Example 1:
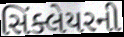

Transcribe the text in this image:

સિંક્લેયરની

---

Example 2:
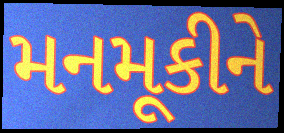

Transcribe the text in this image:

મનમૂકીને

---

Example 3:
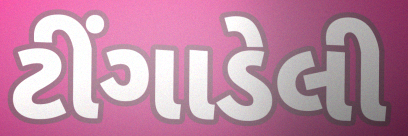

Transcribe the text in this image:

ટીંગાડેલી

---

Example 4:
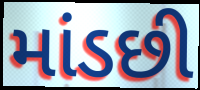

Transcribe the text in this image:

માંડછી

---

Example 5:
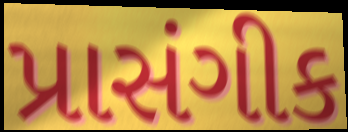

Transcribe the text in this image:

પ્રાસંગીક